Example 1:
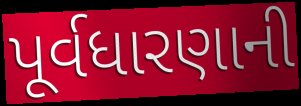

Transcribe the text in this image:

પૂર્વધારણાની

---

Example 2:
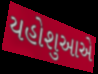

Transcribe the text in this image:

યહોશુઆએ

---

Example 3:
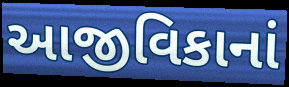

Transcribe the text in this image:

આજીવિકાનાં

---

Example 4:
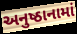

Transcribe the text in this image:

અનુષ્ઠાનામાં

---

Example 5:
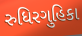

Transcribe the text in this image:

રુધિરગુહિકા